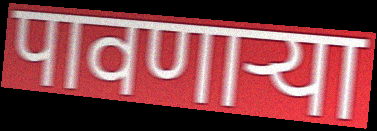
पावणाऱ्या